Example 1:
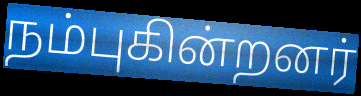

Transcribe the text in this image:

நம்புகின்றனர்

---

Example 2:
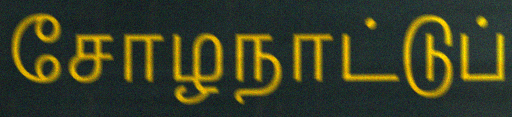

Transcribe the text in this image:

சோழநாட்டுப்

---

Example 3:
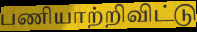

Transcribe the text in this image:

பணியாற்றிவிட்டு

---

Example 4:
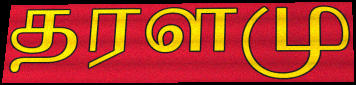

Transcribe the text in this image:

தரளமு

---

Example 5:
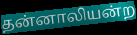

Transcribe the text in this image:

தன்னாலியன்ற